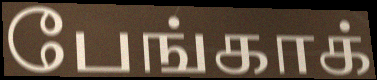
பேங்காக்